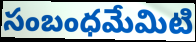
సంబంధమేమిటి